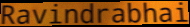
Ravindrabhai